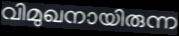
വിമുഖനായിരുന്ന